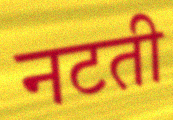
नटती